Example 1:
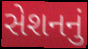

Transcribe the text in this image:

સેશનનું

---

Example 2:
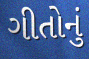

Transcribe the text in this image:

ગીતોનું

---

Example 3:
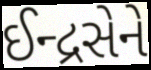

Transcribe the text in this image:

ઈન્દ્રસેને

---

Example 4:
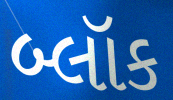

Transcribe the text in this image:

બ્લૉક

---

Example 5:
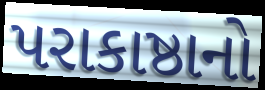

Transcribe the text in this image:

પરાકાષ્ઠાનો